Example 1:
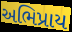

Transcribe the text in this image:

અભિપ્રાય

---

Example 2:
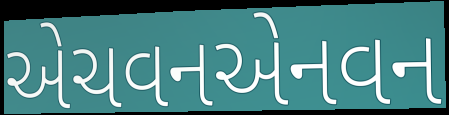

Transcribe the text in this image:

એચવનએનવન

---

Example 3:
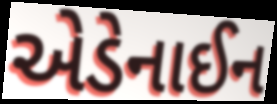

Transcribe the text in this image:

એડેનાઈન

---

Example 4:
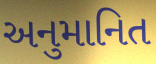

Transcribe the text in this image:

અનુમાનિત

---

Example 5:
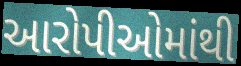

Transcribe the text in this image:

આરોપીઓમાંથી